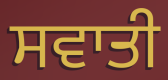
ਸਵਾਤੀ